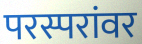
परस्परांवर